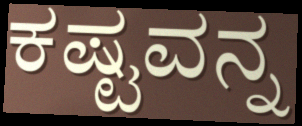
ಕಷ್ಟವನ್ನ